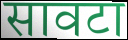
सावटा